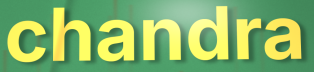
chandra